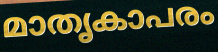
മാതൃകാപരം